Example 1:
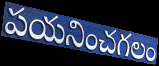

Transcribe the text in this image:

పయనించగలం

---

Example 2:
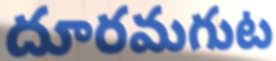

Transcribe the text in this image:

దూరమగుట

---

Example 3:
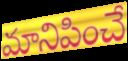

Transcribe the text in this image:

మానిపించే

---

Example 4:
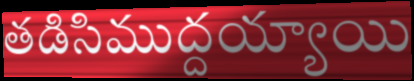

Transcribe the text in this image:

తడిసిముద్దయ్యాయి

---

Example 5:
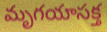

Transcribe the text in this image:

మృగయాసక్త